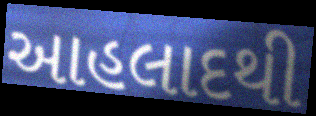
આહલાદથી